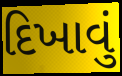
દિખાવું